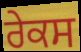
ਰੇਕਸ